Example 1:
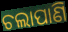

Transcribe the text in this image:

ଚଲାପାଣି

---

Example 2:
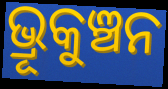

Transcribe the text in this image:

ଭ୍ରୂକୁଞ୍ଚନ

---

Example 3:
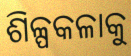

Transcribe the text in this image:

ଶିଳ୍ପକଳାକୁ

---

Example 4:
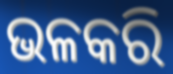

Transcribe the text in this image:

ଭଳକରି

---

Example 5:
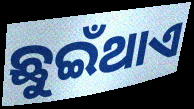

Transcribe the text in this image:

ଛୁଇଁଥାଏ